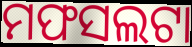
ମଫସଲଟା